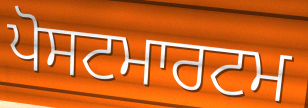
ਪੋਸਟਮਾਰਟਮ